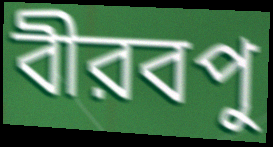
বীরবপু